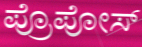
ಪ್ರೊಪೋಸ್